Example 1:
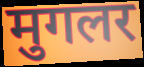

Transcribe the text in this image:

मुगलर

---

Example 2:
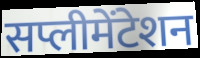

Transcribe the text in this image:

सप्लीमेंटेशन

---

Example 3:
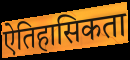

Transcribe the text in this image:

ऐतिहासिकता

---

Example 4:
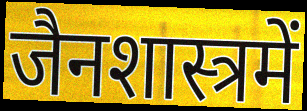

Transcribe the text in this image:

जैनशास्त्रमें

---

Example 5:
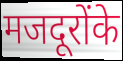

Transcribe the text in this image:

मजदूरोंके